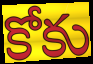
కోకు